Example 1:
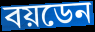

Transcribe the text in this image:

বয়ডেন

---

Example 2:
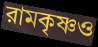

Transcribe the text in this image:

রামকৃষ্ণও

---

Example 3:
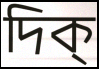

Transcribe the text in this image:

দিক্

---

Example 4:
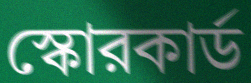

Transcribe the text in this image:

স্কোরকার্ড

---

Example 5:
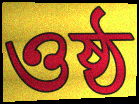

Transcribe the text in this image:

ওষ্ঠ